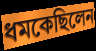
ধমকেছিলেন